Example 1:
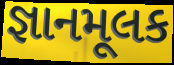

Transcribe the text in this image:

જ્ઞાનમૂલક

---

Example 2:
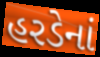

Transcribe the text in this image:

હરડેનાં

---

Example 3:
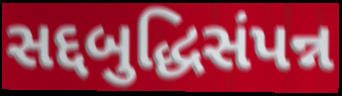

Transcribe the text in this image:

સદ્દબુદ્ધિસંપન્ન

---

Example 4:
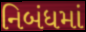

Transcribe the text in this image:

નિબંધમાં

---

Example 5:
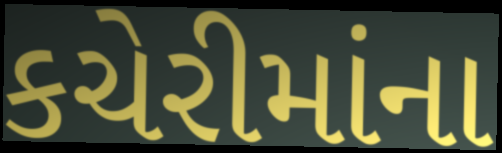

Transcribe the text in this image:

કચેરીમાંના